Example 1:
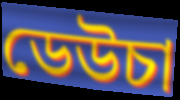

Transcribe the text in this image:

ডেউচা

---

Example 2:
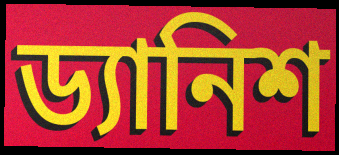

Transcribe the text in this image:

ড্যানিশ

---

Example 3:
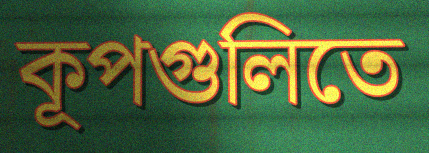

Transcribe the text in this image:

কূপগুলিতে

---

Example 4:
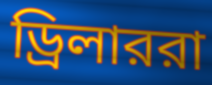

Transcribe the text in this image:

ড্রিলাররা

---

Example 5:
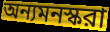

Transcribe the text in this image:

অন্যমনস্করা